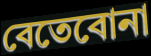
বেতেবোনা